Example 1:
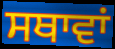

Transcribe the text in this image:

ਸਥਾਵਾਂ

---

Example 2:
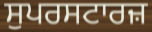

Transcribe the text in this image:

ਸੁਪਰਸਟਾਰਜ਼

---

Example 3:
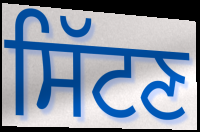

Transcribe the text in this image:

ਸਿੱਟਣ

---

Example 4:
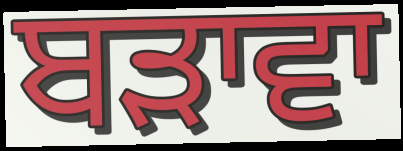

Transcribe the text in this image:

ਬੜਾਵਾ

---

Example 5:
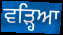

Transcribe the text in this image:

ਵੜ੍ਹਿਆ